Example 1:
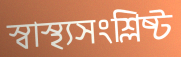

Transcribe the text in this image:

স্বাস্থ্যসংশ্লিষ্ট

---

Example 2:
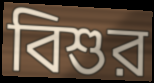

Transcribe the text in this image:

বিশুর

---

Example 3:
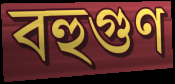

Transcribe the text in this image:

বহুগুণ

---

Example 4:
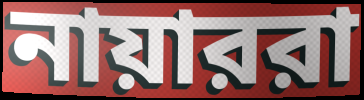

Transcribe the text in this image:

নায়াররা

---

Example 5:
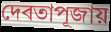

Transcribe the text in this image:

দেবতাপূজায়